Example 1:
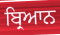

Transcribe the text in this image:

ਬ੍ਰਿਆਨ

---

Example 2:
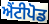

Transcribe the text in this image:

ਐਂਟੀਪੋਡ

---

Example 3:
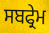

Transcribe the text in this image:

ਸਬਫ੍ਰੇਮ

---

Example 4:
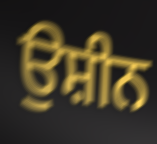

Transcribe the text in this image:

ਉਸ਼ੀਨ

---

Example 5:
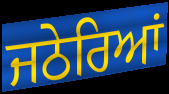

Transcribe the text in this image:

ਜਠੇਰਿਆਂ